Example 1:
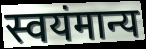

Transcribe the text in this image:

स्वयंमान्य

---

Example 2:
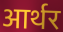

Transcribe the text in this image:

आर्थर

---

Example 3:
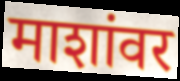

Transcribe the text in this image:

माशांवर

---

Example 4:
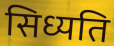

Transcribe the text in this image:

सिध्यति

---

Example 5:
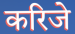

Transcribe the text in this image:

करिजे